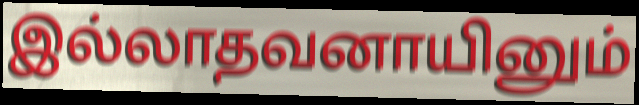
இல்லாதவனாயினும்